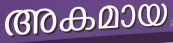
അകമായ